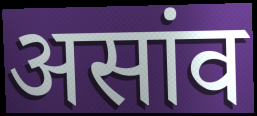
असांव